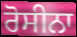
ਰੋਸੀਨਾ